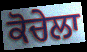
ਕੋਚੇਲਾ